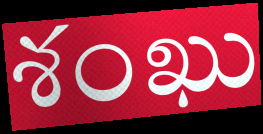
శంఖు